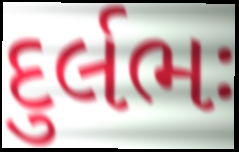
દુર્લભઃ